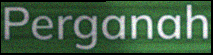
Perganah